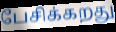
பேசிக்கறது